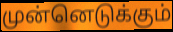
முன்னெடுக்கும்